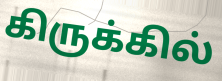
கிருக்கில்